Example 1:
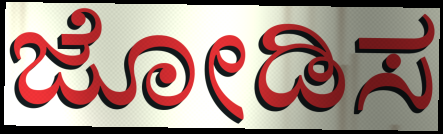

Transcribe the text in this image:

ಜೋಡಿಸ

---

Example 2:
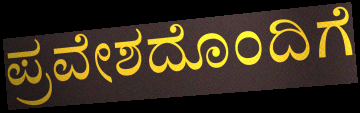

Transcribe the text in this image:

ಪ್ರವೇಶದೊಂದಿಗೆ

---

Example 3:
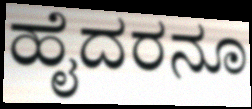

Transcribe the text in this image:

ಹೈದರನೂ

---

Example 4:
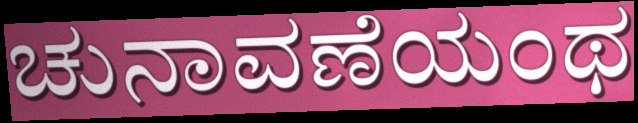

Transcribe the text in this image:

ಚುನಾವಣೆಯಂಥ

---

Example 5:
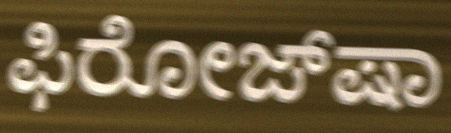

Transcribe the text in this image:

ಫಿರೋಜ್‌ಷಾ